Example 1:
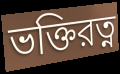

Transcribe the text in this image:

ভক্তিরত্ন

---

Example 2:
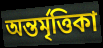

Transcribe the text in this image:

অন্তর্মৃত্তিকা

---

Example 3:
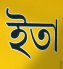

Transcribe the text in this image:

ইতা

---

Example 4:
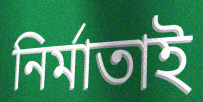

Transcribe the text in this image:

নির্মাতাই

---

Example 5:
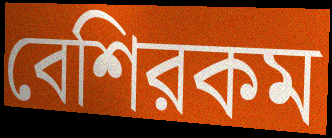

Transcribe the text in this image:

বেশিরকম